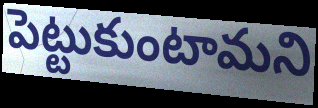
పెట్టుకుంటామని